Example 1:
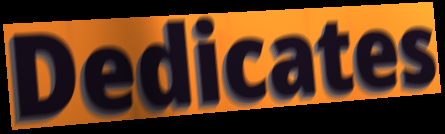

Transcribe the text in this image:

Dedicates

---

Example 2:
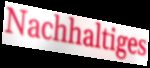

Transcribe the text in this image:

Nachhaltiges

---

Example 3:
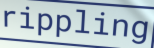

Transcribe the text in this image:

rippling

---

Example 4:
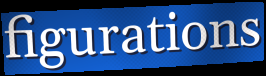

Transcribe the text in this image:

figurations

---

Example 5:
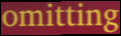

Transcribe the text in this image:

omitting